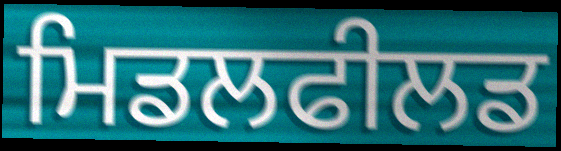
ਮਿਡਲਫੀਲਡ